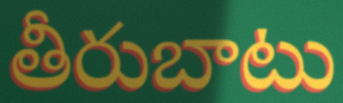
తీరుబాటు